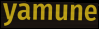
yamune